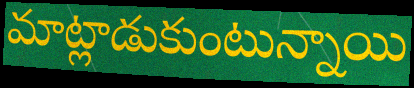
మాట్లాడుకుంటున్నాయి